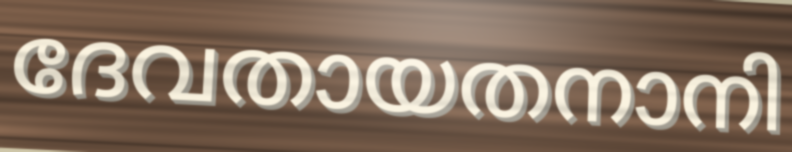
ദേവതായതനാനി